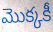
మొక్కకీ